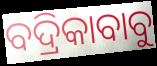
ବଦ୍ରିକାବାବୁ